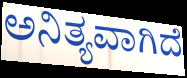
ಅನಿತ್ಯವಾಗಿದೆ